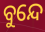
ବୁନ୍ଦେ